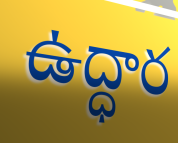
ఉద్ధార